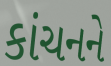
કાંચનને